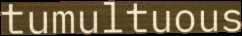
tumultuous